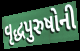
વૃદ્ધપુરુષોની